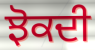
ਝੋਕਦੀ